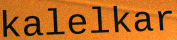
kalelkar